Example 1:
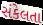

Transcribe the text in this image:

સંકેલતા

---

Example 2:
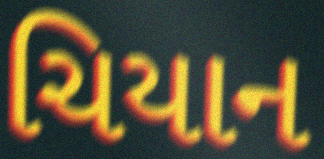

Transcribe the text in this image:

ચિયાન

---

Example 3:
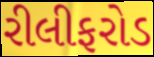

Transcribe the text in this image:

રીલીફરોડ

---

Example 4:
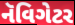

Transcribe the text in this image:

નૅવિગેટર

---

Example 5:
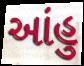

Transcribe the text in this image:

આંહુ